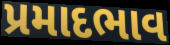
પ્રમાદભાવ